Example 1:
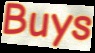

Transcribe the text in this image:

Buys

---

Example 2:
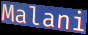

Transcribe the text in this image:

Malani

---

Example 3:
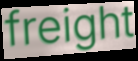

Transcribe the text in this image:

freight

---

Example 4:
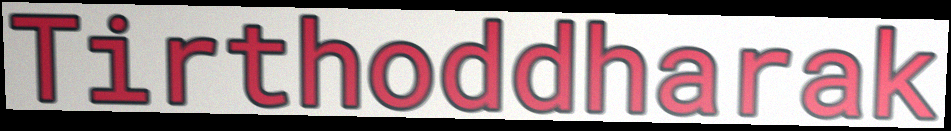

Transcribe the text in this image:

Tirthoddharak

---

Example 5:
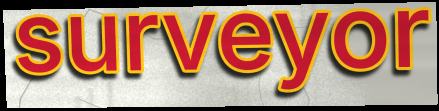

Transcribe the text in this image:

surveyor